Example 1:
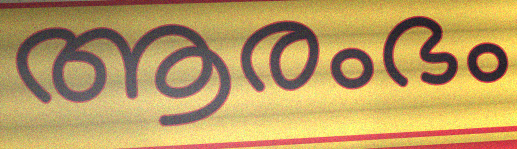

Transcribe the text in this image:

ആരംഭം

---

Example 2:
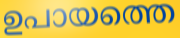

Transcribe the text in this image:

ഉപായത്തെ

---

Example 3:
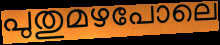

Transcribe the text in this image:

പുതുമഴപോലെ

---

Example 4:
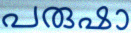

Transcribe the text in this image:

പരുഷാ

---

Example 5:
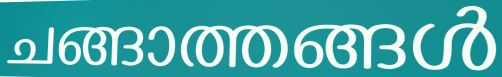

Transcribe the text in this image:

ചങ്ങാത്തങ്ങൾ